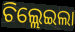
ଚିଲ୍ଲେଇଲା